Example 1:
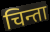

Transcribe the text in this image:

चिन्ता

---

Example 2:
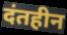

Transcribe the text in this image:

दंतहीन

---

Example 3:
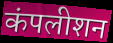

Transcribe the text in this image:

कंपलीशन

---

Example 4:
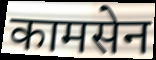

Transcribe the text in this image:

कामसेन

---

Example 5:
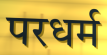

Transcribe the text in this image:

परधर्म